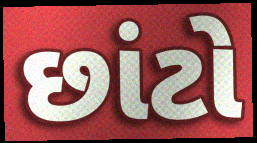
છાંટો